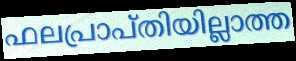
ഫലപ്രാപ്തിയില്ലാത്ത